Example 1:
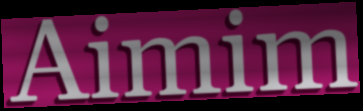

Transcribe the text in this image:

Aimim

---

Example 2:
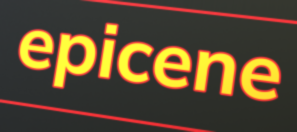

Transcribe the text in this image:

epicene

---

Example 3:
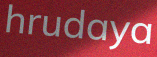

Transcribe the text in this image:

hrudaya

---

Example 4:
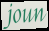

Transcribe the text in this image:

joun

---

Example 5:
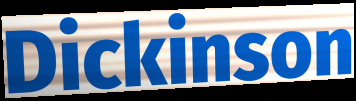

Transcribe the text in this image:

Dickinson